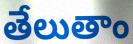
తేలుతాం